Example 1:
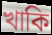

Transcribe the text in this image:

খাকি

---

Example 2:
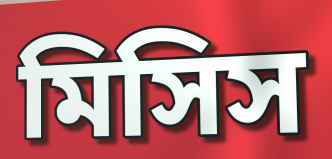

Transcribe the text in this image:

মিসিস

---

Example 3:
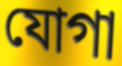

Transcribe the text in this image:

যোগা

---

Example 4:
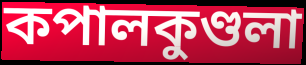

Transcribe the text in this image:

কপালকুণ্ডলা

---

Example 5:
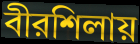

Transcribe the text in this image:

বীরশিলায়